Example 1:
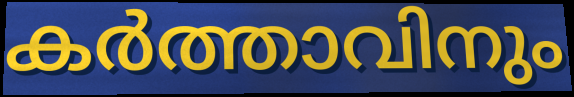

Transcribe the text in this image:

കർത്താവിനും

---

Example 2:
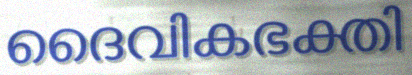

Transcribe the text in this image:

ദൈവികഭക്തി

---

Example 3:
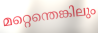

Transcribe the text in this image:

മറ്റെന്തെങ്കിലും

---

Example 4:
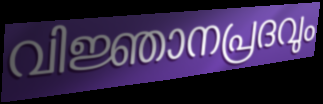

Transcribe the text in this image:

വിജ്ഞാനപ്രദവും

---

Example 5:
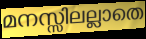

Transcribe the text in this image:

മനസ്സിലല്ലാതെ